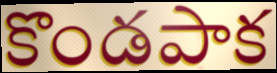
కొండపాక